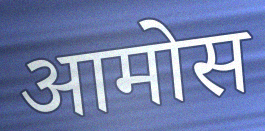
आमोस